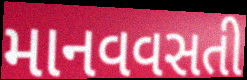
માનવવસતી